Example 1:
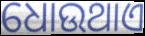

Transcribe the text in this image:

ଧୋଉଥାଏ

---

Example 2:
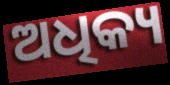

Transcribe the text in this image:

ଅଧିକ୍ୟ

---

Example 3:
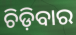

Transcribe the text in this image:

ଚିଡ଼ିବାର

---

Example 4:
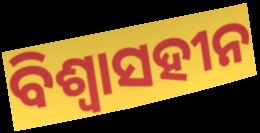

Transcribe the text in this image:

ବିଶ୍ୱାସହୀନ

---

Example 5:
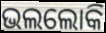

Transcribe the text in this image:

ଭଲଲୋକି